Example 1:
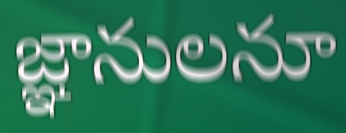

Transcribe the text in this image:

జ్ఞానులనూ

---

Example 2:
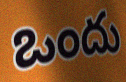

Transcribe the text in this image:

ఒందు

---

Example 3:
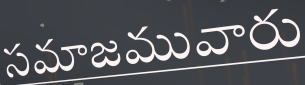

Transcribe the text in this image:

సమాజమువారు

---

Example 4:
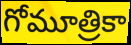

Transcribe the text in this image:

గోమూత్రికా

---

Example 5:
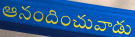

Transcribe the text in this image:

ఆనందించువాడు